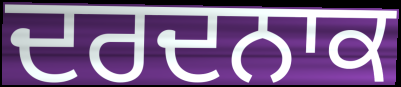
ਦਰਦਨਾਕ